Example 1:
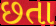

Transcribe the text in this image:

છતા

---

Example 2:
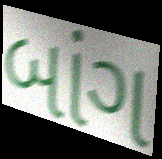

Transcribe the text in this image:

બાંગ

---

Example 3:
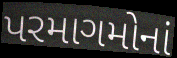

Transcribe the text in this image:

પરમાગમોનાં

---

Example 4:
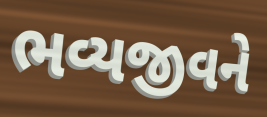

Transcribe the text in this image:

ભવ્યજીવને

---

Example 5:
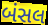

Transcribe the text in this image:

બંસલ